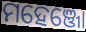
ମହେଞ୍ଜୋ